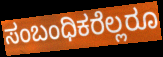
ಸಂಬಂಧಿಕರೆಲ್ಲರೂ